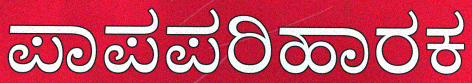
ಪಾಪಪರಿಹಾರಕ